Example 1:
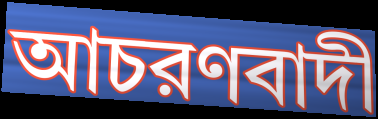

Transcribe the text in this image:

আচরণবাদী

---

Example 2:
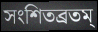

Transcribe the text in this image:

সংশিতব্রতম্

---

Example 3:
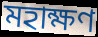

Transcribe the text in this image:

মহাক্ষণ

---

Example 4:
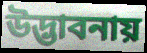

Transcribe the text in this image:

উদ্ভাবনায়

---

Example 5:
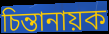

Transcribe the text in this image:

চিন্তানায়ক